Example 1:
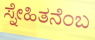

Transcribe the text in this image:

ಸ್ನೇಹಿತನೆಂಬ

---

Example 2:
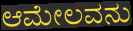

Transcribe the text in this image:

ಆಮೇಲವನು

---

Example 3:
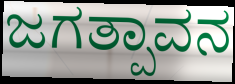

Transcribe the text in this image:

ಜಗತ್ಪಾವನ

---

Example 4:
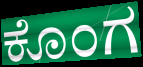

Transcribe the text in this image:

ಕೊಂಗ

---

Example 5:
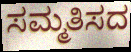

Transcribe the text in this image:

ಸಮ್ಮತಿಸದ